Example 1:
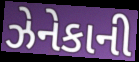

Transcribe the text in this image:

ઝેનેકાની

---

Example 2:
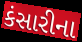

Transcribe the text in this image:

કંસારીના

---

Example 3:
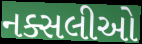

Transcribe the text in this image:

નક્સલીઓ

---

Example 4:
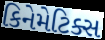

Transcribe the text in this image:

કિનેમેટિક્સ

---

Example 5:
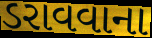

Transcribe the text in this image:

ડરાવવાના